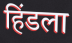
हिंडला